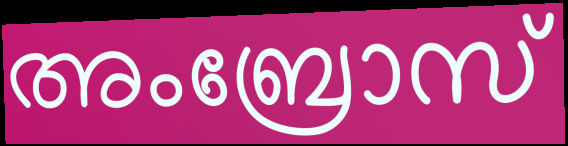
അംബ്രോസ്